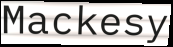
Mackesy